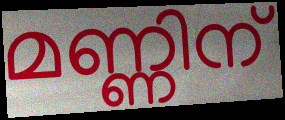
മണ്ണിന്